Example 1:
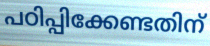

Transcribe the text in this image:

പഠിപ്പിക്കേണ്ടതിന്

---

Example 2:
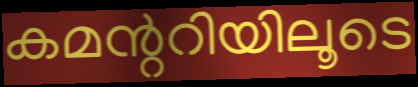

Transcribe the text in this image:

കമന്ററിയിലൂടെ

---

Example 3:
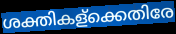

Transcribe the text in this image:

ശക്തികള്ക്കെതിരേ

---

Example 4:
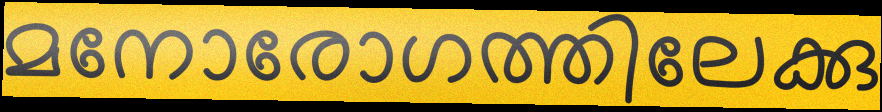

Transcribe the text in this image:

മനോരോഗത്തിലേക്കു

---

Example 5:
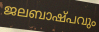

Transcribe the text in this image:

ജലബാഷ്പവും